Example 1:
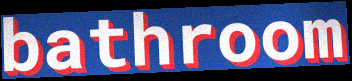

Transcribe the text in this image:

bathroom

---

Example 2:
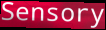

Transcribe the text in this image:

Sensory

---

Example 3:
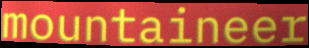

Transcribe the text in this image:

mountaineer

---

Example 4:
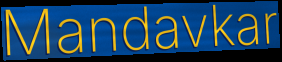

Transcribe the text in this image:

Mandavkar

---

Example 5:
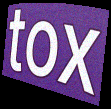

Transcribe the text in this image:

tox